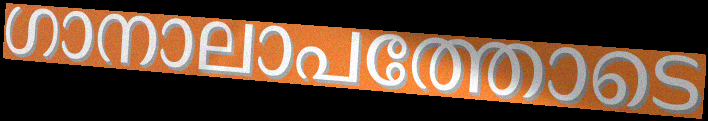
ഗാനാലാപത്തോടെ